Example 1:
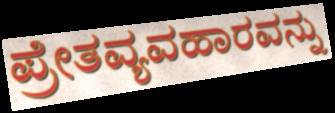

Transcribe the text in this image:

ಪ್ರೇತವ್ಯವಹಾರವನ್ನು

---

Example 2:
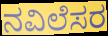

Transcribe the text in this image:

ನವಿಲೆಸರ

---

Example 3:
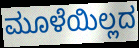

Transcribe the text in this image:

ಮೂಳೆಯಿಲ್ಲದ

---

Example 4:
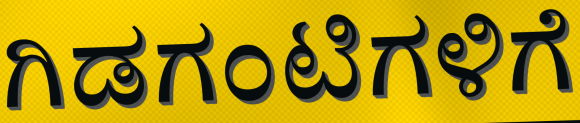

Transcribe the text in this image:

ಗಿಡಗಂಟಿಗಳಿಗೆ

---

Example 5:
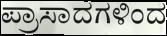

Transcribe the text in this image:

ಪ್ರಾಸಾದಗಳಿಂದ